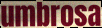
umbrosa